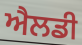
ਐਲਡੀ